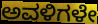
ಅವಳಿಗಳೇ